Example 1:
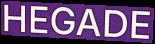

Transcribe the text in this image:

HEGADE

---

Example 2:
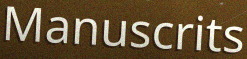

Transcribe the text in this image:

Manuscrits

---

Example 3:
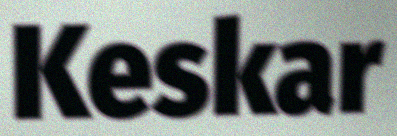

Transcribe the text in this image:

Keskar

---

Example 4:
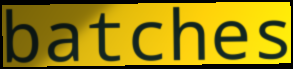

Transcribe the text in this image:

batches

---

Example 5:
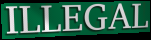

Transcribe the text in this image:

ILLEGAL